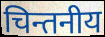
चिन्तनीय